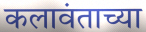
कलावंताच्या